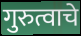
गुरुत्वाचे